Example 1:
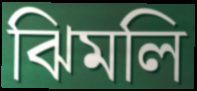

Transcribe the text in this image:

ঝিমলি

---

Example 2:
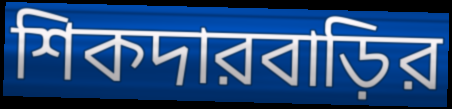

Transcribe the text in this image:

শিকদারবাড়ির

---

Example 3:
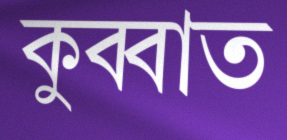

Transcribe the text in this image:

কুব্বাত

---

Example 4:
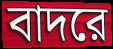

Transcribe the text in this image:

বাদরে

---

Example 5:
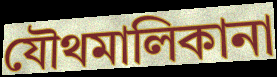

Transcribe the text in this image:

যৌথমালিকানা